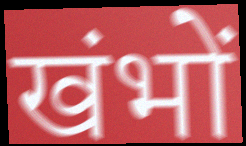
खंभों